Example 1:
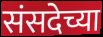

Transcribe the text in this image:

संसदेच्या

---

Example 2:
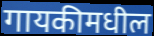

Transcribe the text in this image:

गायकीमधील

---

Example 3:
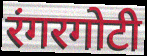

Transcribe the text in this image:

रंगरगोटी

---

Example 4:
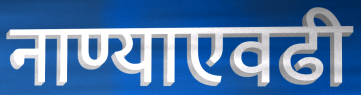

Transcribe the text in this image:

नाण्याएवढी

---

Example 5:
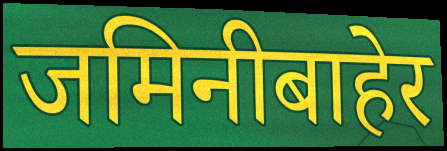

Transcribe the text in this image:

जमिनीबाहेर